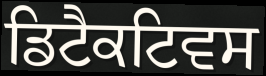
ਡਿਟੈਕਟਿਵਸ